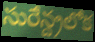
సురేన్ద్రలోక